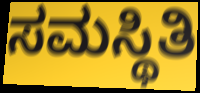
ಸಮಸ್ಥಿತಿ